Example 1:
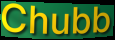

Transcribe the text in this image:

Chubb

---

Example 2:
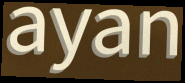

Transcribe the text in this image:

ayan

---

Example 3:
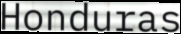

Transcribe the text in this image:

Honduras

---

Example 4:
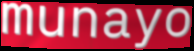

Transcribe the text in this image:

munayo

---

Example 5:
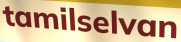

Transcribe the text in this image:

tamilselvan